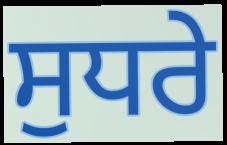
ਸੁਧਰੇ